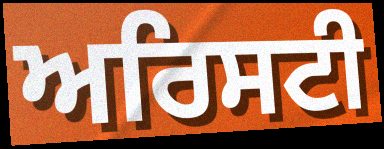
ਅਰਿਸਟੀ